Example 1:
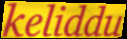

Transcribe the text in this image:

keliddu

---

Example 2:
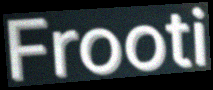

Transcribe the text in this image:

Frooti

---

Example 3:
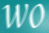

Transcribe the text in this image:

wo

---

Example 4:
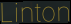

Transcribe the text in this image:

Linton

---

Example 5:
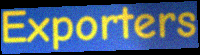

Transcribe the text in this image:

Exporters